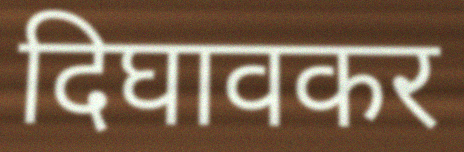
दिघावकर